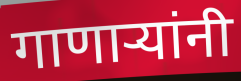
गाणाऱ्यांनी